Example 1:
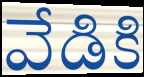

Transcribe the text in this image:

వేడికి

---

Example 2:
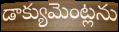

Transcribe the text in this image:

డాక్యుమెంట్లను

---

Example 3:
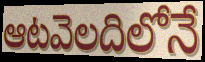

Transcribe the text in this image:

ఆటవెలదిలోనే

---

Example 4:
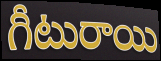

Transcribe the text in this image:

గీటురాయి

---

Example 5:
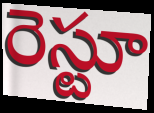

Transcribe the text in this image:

రెస్టూ